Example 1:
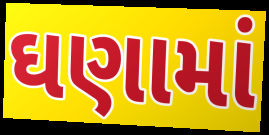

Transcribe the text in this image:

ઘણામાં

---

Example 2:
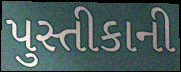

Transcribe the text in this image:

પુસ્તીકાની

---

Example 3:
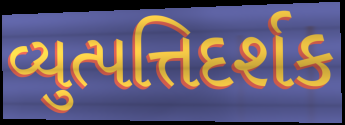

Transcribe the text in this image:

વ્યુત્પત્તિદર્શક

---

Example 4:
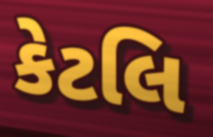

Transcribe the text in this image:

કેટલિ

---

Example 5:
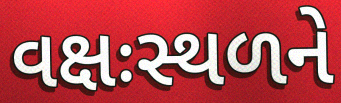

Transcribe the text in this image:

વક્ષઃસ્થળને